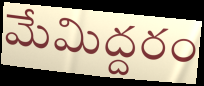
మేమిద్దరం